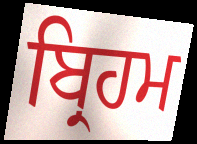
ਬ੍ਰਿਹਮ